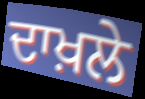
ਦਾਖ਼ਲੇ